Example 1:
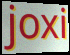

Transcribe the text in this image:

joxi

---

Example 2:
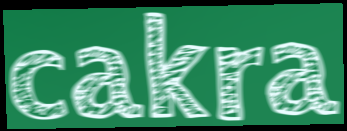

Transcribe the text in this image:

cakra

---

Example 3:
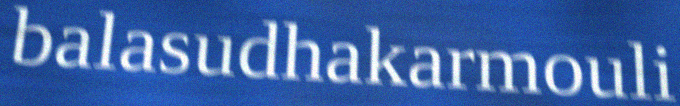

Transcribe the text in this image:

balasudhakarmouli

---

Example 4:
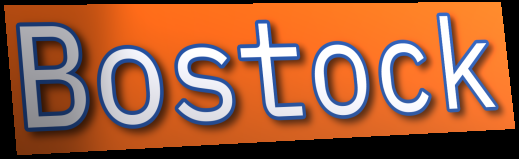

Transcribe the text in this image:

Bostock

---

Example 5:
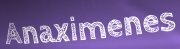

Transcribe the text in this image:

Anaximenes